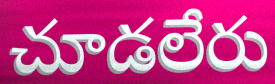
చూడలేరు